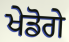
ਖੇਡੋਗੇ